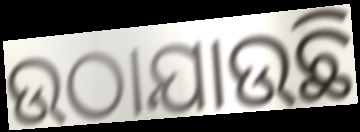
ଉଠାଯାଉଛି